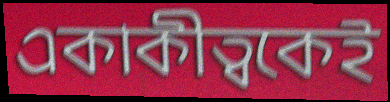
একাকীত্বকেই